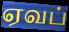
ஏவப்